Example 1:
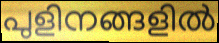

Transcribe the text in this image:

പുളിനങ്ങളിൽ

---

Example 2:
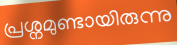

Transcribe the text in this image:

പ്രശ്നമുണ്ടായിരുന്നു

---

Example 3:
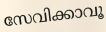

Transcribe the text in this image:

സേവിക്കാവൂ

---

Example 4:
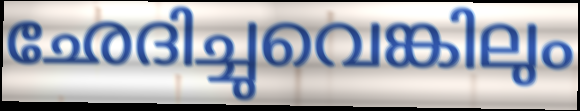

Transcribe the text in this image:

ഛേദിച്ചുവെങ്കിലും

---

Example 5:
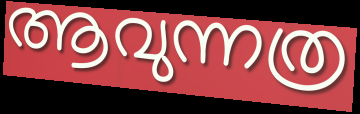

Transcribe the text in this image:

ആവുന്നത്ര